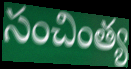
సంచింత్య